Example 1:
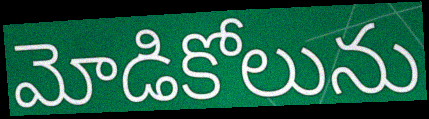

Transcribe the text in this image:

మోడికోలును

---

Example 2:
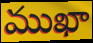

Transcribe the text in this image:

ముఖా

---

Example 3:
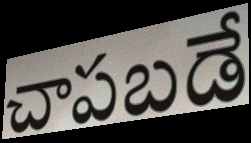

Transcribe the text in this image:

చాపబడే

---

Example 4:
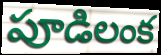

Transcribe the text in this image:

పూడిలంక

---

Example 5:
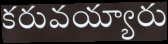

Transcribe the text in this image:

కరువయ్యారు